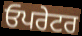
ਓਪਰੇਟਰ